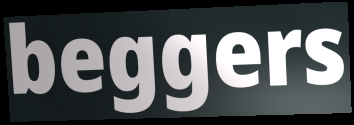
beggers